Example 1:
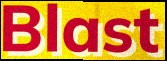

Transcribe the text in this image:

Blast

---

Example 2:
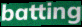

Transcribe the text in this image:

batting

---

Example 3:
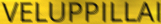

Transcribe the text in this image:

VELUPPILLAI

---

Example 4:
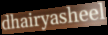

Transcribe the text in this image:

dhairyasheel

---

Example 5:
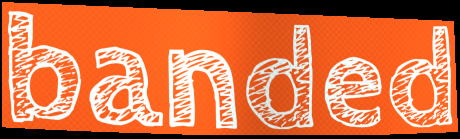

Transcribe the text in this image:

banded